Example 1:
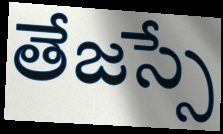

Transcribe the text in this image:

తేజస్సే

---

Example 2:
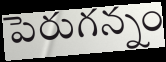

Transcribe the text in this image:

పెరుగన్నం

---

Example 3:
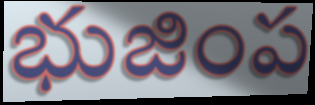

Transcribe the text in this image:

భుజింప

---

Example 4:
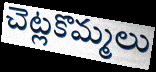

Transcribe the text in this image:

చెట్లకొమ్మలు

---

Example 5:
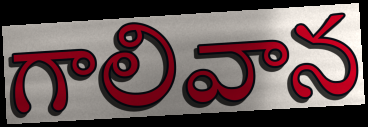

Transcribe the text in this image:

గాలివాన